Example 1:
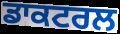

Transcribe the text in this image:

ਡਾਕਟਰਲ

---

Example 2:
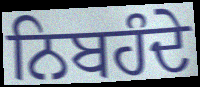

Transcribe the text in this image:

ਨਿਬਹੰਦੇ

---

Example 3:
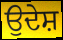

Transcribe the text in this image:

ਉਦੇਸ਼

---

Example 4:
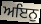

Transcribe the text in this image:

ਅਇਨੁ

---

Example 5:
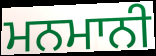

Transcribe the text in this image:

ਮਨਮਾਨੀ